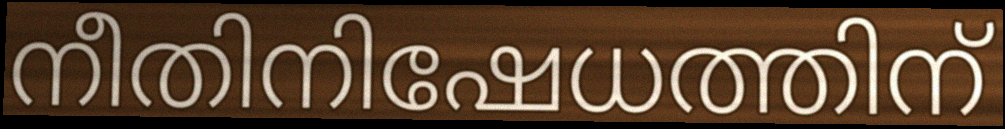
നീതിനിഷേധത്തിന്